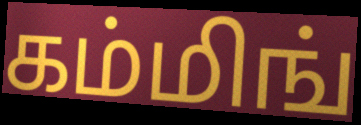
கம்மிங்